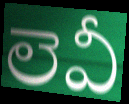
లెవీ